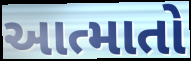
આત્માતો